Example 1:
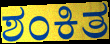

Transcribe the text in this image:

ಶಂಕಿತ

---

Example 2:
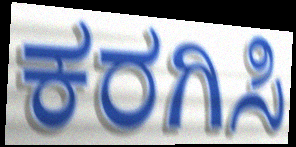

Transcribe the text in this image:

ಕರಗಿಸಿ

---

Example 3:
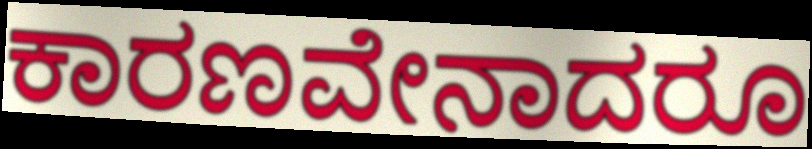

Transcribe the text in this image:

ಕಾರಣವೇನಾದರೂ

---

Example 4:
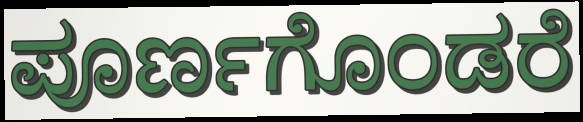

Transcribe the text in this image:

ಪೂರ್ಣಗೊಂಡರೆ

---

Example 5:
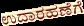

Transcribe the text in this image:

ಉದಾರಹಣೆಗೆ